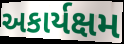
અકાર્યક્ષમ